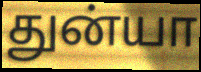
துன்யா